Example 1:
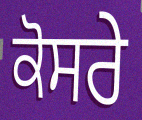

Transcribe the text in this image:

ਕੋਸਰੇ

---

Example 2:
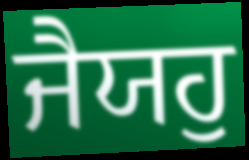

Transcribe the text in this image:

ਜੈਯਹੁ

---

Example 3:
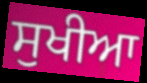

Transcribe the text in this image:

ਸੁਖੀਆ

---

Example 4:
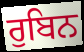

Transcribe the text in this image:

ਰੁਬਿਨ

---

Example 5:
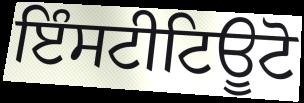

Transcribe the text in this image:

ਇੰਸਟੀਟਿਊਟੋ